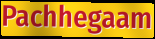
Pachhegaam